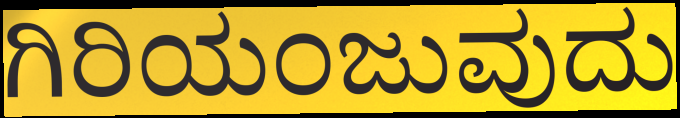
ಗಿರಿಯಂಜುವುದು